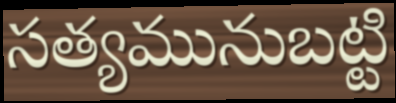
సత్యమునుబట్టి